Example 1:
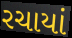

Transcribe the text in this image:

રચાયાં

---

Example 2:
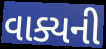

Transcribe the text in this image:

વાક્યની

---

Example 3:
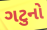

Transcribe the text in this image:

ગટુનો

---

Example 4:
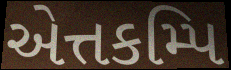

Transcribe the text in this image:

એત્તકમ્પિ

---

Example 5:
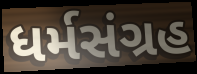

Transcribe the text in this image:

ધર્મસંગ્રહ